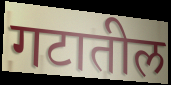
गटातील